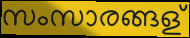
സംസാരങ്ങള്